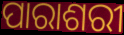
ପାରାଶରୀ